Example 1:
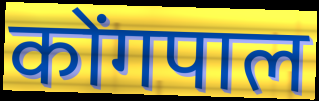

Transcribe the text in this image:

कोंगपाल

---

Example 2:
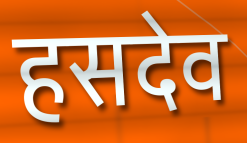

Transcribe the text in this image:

हसदेव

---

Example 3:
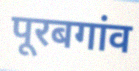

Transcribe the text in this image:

पूरबगांव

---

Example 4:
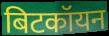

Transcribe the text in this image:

बिटकॉयन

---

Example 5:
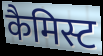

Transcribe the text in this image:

कैमिस्ट